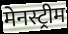
मेनस्ट्रीम